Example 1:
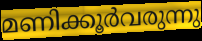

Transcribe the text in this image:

മണിക്കൂർവരുന്നു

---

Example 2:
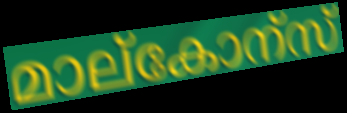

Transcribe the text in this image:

മാല്കോന്സ്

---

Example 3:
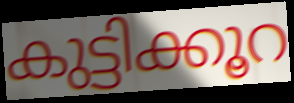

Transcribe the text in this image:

കുട്ടിക്കൂറ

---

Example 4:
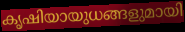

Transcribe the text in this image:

കൃഷിയായുധങ്ങളുമായി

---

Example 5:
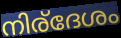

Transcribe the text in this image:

നിര്ദേശം